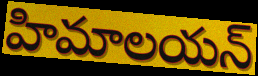
హిమాలయన్